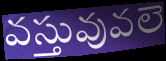
వస్తువువలె